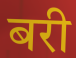
बरी